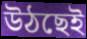
উঠছেই